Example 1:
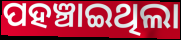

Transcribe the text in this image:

ପହଞ୍ଚାଇଥିଲା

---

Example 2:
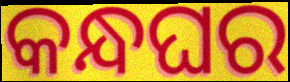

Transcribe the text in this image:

କନ୍ଧଘର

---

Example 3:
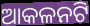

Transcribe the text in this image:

ଆକଳନଟି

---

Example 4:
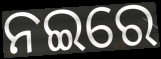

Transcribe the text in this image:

ନଇରେ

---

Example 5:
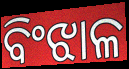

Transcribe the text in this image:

ବିଂଝାଳ